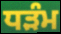
ਧੜੰਮ